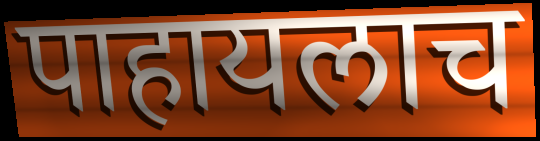
पाहायलाच